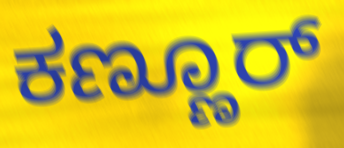
ಕಣ್ಣೂರ್